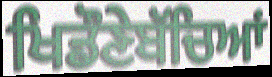
ਖਿਡੌਣੇਬੱਚਿਆਂ